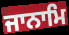
ਜਾਨਾਮਿ